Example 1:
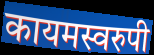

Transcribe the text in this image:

कायमस्वरुपी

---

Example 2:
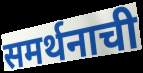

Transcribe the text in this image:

समर्थनाची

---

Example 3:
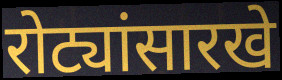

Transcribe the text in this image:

रोट्यांसारखे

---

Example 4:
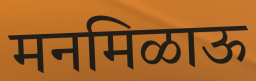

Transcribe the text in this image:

मनमिळाऊ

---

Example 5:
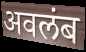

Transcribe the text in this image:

अवलंब